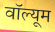
वॉल्यूम